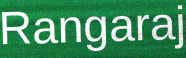
Rangaraj